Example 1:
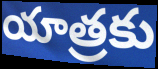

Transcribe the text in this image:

యాత్రకు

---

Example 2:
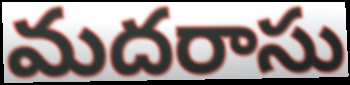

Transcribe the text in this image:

మదరాసు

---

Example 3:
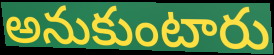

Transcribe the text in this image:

అనుకుంటారు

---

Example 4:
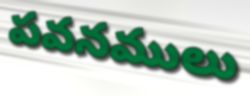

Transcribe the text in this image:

పవనములు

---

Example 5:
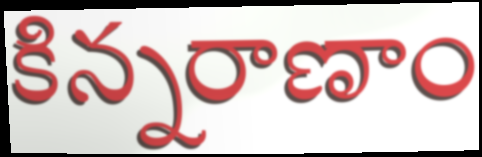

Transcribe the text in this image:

కిన్నరాణాం